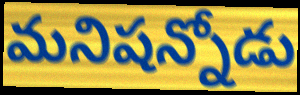
మనిషన్నోడు